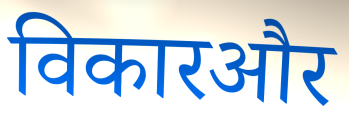
विकारऔर